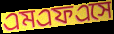
এমএফএসে